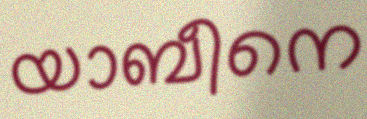
യാബീനെ